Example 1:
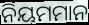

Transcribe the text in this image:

ନିୟମମାନ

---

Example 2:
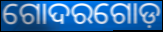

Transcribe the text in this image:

ଗୋଦରଗୋଡ଼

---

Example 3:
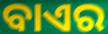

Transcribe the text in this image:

ବାଏର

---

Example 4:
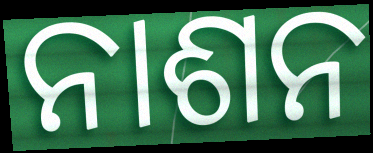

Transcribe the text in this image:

ନାଶନ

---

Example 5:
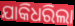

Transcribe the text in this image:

ଯାକିଧରିଲା